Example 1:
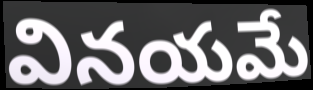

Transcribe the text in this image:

వినయమే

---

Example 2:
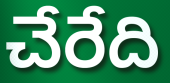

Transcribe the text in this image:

చేరేది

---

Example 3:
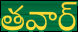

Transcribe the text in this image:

తవార్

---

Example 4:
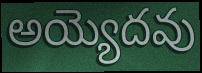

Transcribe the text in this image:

అయ్యెదవు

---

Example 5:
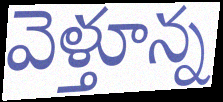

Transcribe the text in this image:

వెళ్తూన్న